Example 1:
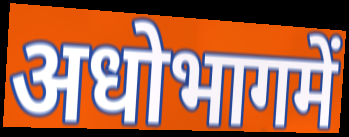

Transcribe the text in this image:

अधोभागमें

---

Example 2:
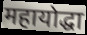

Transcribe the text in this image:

महायोद्धा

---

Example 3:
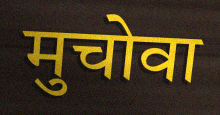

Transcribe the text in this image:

मुचोवा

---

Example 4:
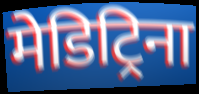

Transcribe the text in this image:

मेडिट्रिना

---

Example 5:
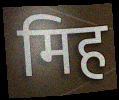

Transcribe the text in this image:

मिह